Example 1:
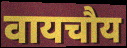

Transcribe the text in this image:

वायचौय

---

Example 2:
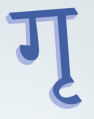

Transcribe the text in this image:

गृ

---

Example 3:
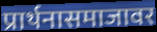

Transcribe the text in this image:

प्रार्थनासमाजावर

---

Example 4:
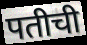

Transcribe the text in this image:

पतीची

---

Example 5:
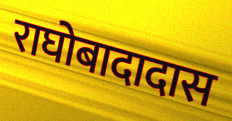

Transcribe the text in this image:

राघोबादादास